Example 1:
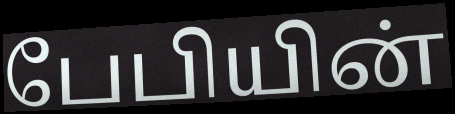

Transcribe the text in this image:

பேபியின்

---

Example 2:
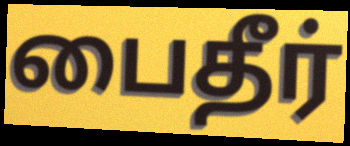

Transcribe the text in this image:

பைதீர்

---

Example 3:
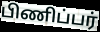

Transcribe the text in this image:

பிணிப்பர்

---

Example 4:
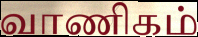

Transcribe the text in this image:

வாணிகம்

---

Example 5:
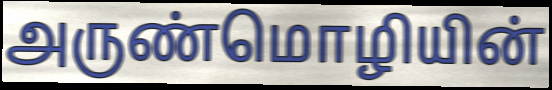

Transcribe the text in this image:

அருண்மொழியின்